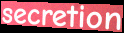
secretion